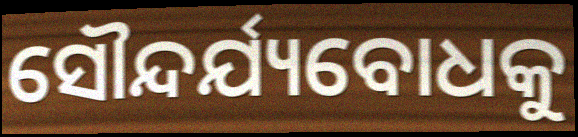
ସୌନ୍ଦର୍ଯ୍ୟବୋଧକୁ